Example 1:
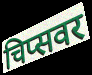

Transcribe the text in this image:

चिप्सवर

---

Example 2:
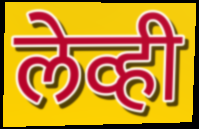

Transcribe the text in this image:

लेव्ही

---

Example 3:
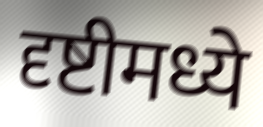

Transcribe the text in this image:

दृष्टीमध्ये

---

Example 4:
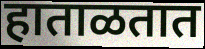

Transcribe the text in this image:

हाताळतात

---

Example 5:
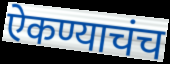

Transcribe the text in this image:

ऐकण्याचंच